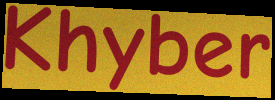
Khyber